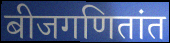
बीजगणितांत